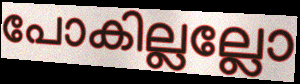
പോകില്ലല്ലോ